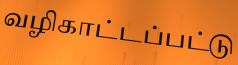
வழிகாட்டப்பட்டு